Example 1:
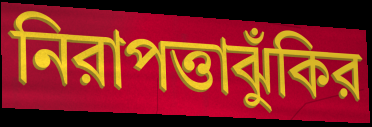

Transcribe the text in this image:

নিরাপত্তাঝুঁকির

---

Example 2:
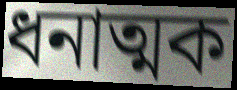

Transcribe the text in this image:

ধনাত্মক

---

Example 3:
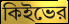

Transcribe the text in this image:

কিইভের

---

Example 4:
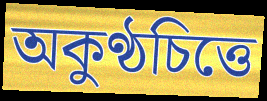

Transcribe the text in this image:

অকুণ্ঠচিত্তে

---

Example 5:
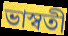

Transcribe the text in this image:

ভাস্বতী